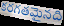
కరగతమైనది